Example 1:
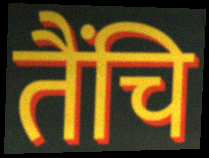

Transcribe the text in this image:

तैंचि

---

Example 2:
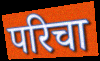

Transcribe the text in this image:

परिचा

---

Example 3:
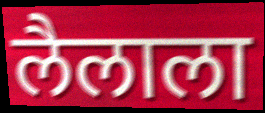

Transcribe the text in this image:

लैलाला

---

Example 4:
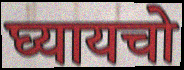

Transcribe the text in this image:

घ्यायचो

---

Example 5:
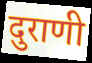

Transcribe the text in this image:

दुराणी